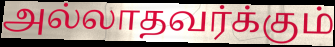
அல்லாதவர்க்கும்